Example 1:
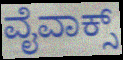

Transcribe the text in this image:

ವೈವಾಕ್ಸ್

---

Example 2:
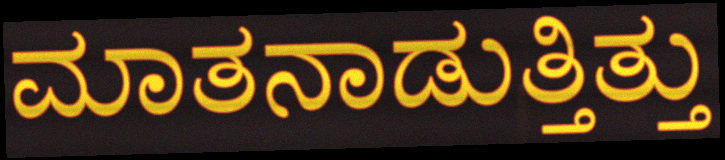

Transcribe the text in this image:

ಮಾತನಾಡುತ್ತಿತ್ತು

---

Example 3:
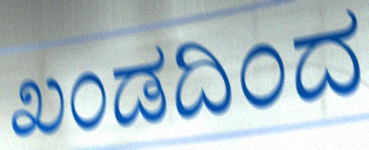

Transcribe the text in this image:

ಖಂಡದಿಂದ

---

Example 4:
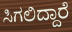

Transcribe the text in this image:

ಸಿಗಲಿದ್ದಾರೆ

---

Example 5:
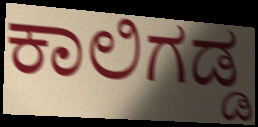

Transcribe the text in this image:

ಕಾಲಿಗಡ್ಡ